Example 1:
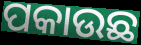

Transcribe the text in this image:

ପକାଉଛ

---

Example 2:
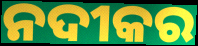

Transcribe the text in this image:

ନଦୀକର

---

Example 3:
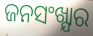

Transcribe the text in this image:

ଜନସଂଖ୍ଯାର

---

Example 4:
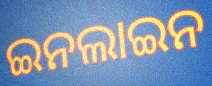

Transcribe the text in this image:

ଇନଲାଇନ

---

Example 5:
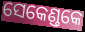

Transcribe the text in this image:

ସେକେଣ୍ଡକେ